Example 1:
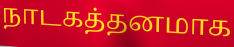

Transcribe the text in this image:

நாடகத்தனமாக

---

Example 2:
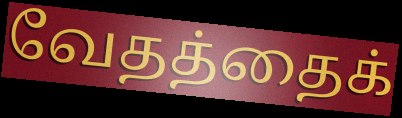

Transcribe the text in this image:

வேதத்தைக்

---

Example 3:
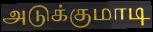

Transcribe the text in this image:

அடுக்குமாடி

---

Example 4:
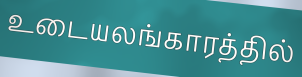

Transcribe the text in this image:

உடையலங்காரத்தில்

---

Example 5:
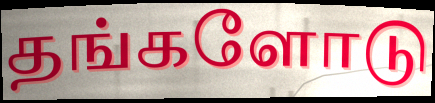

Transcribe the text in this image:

தங்களோடு